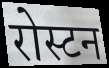
रोस्टन